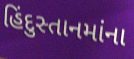
હિંદુસ્તાનમાંના